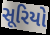
સૂરિયો